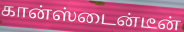
கான்ஸ்டைன்டீன்